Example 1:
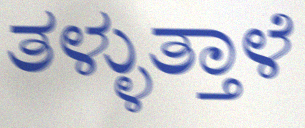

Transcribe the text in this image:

ತಳ್ಳುತ್ತಾಳೆ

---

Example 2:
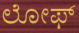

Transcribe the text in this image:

ಲೋಫ್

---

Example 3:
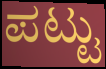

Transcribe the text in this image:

ಪಟ್ಟು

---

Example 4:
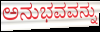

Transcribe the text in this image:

ಅನುಭವವನ್ನು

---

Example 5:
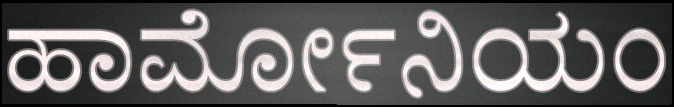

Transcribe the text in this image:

ಹಾರ್ಮೋನಿಯಂ